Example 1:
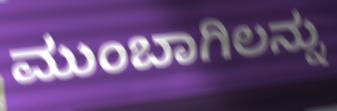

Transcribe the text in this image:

ಮುಂಬಾಗಿಲನ್ನು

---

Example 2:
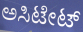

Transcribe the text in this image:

ಅಸಿಟೇಟ್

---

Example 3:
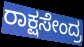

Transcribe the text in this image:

ರಾಕ್ಷಸೇಂದ್ರ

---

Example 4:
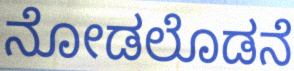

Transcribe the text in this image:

ನೋಡಲೊಡನೆ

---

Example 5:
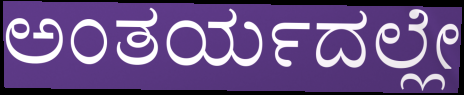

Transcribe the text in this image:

ಅಂತರ್ಯದಲ್ಲೇ